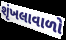
શૃંખલાવાળો